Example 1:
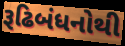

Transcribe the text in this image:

રૂઢિબંધનોથી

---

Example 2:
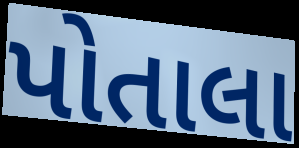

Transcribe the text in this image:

પોતાલા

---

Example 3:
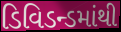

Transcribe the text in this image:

ડિવિડન્ડમાંથી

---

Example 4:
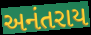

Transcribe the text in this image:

અનંતરાય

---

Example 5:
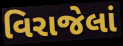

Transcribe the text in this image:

વિરાજેલાં